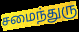
சமைந்துரு